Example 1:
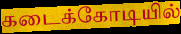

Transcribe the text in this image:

கடைக்கோடியில்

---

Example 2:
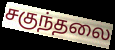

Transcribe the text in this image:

சகுந்தலை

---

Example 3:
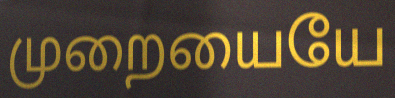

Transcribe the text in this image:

முறையையே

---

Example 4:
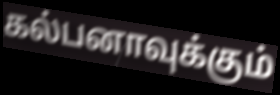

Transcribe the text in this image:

கல்பனாவுக்கும்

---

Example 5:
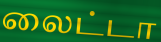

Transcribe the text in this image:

லைட்டா